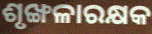
ଶୃଙ୍ଖଳାରକ୍ଷକ